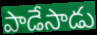
పాడేసాడు